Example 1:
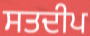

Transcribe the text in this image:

ਸਤਦੀਪ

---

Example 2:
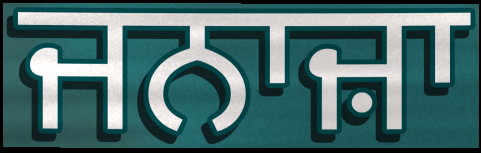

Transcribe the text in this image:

ਜਨਾਜ਼ਾ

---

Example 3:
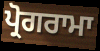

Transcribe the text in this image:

ਪ੍ਰੋਗਰਾਮਾ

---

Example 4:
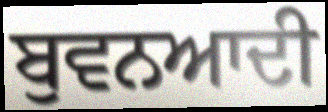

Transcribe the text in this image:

ਬੁਵਨਆਦੀ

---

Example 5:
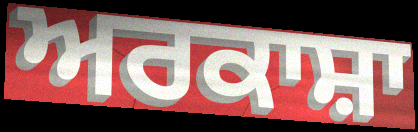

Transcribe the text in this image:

ਅਰਕਾਸ਼ਾ